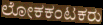
ಲೋಕಕಂಟಕರು